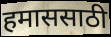
हमाससाठी